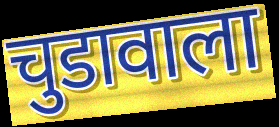
चुडावाला